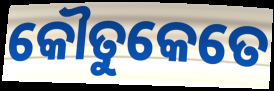
କୌତୁକେତେ